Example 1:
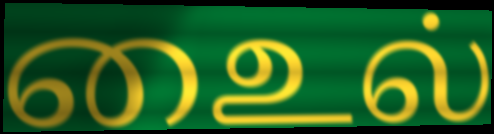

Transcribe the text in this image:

உைல்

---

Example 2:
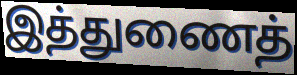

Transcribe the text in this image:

இத்துணைத்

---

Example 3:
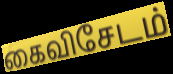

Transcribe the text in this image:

கைவிசேடம்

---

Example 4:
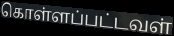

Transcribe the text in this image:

கொள்ளப்பட்டவள்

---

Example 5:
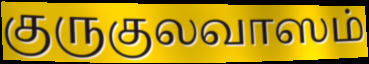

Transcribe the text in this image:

குருகுலவாஸம்